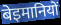
बेइमानियों